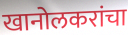
खानोलकरांचा